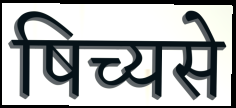
षिच्यसे